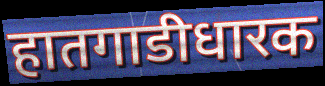
हातगाडीधारक